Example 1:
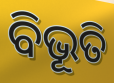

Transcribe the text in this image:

ବିଭୂତି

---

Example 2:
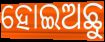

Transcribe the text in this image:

ହୋଇଅଛୁ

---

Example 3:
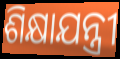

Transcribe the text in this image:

ଶିକ୍ଷାଯନ୍ତ୍ରୀ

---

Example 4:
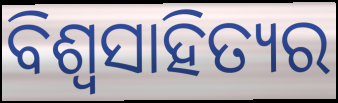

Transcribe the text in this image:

ବିଶ୍ଵସାହିତ୍ୟର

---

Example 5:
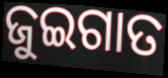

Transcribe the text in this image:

ଜୁଇଗାତ